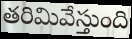
తరిమివేస్తుంది